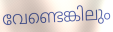
വേണ്ടെങ്കിലും